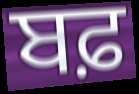
ਬਫ਼